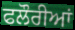
ਫਲੌਰੀਆਂ